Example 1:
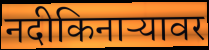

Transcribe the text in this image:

नदीकिनाऱ्यावर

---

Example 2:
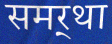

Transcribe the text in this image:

समर्था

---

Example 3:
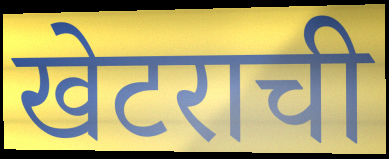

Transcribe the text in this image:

खेटराची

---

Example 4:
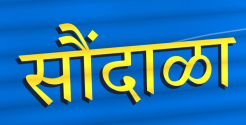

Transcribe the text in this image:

सौंदाळा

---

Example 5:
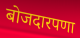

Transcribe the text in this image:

बोजदारपणा